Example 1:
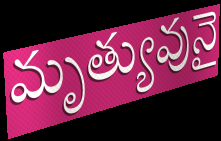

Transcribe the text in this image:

మృత్యువునై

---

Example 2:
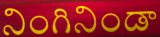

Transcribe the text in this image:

నింగినిండా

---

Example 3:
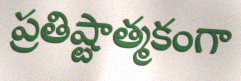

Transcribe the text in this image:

ప్రతిష్టాత్మకంగా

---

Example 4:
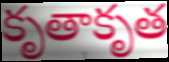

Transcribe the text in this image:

కృతాకృత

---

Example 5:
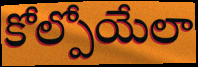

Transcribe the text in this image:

కోల్పోయేలా